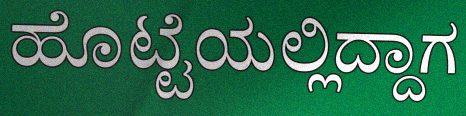
ಹೊಟ್ಟೆಯಲ್ಲಿದ್ದಾಗ